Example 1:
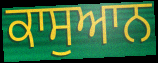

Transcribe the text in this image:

ਕਾਸੁਆਨ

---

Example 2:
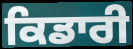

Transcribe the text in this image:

ਕਿਡਾਰੀ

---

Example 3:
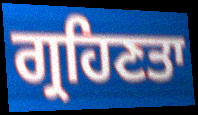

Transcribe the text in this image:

ਗ੍ਰਹਿਣਤਾ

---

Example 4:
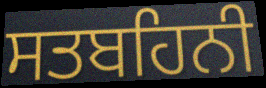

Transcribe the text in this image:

ਸਤਬਹਿਨੀ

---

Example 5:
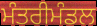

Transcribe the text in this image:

ਮੰਤਰੀਮੰਡਲ